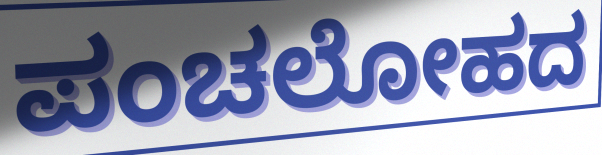
ಪಂಚಲೋಹದ